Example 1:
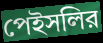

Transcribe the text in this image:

পেইসলির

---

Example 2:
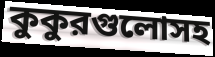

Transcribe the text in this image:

কুকুরগুলোসহ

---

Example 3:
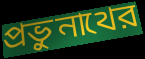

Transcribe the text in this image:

প্রভুনাথের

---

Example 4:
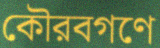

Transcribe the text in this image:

কৌরবগণে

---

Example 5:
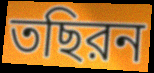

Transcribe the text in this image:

তছিরন